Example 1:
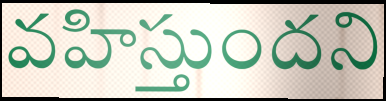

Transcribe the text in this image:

వహిస్తుందని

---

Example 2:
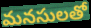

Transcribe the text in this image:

మనసులతో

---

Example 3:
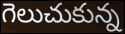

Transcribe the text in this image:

గెలుచుకున్న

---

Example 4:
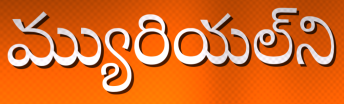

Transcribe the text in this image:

మ్యురియల్‌ని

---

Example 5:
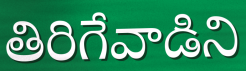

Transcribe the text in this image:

తిరిగేవాడిని